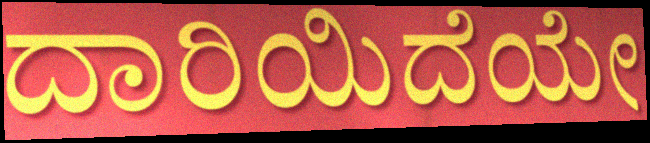
ದಾರಿಯಿದೆಯೇ